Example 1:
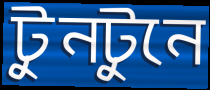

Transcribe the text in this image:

টুনটুনে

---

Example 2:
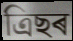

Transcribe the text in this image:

ত্ৰিছৰ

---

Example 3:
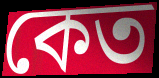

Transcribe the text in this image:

কেত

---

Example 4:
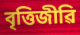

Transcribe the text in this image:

বৃত্তিজীৱি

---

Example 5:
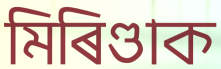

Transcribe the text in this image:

মিৰিণ্ডাক